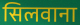
सिलवाना